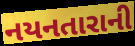
નયનતારાની